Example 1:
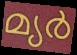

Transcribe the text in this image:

മ്യർ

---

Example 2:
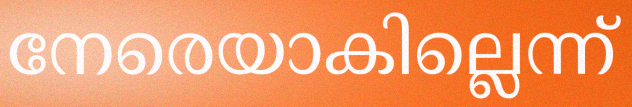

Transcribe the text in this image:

നേരെയാകില്ലെന്ന്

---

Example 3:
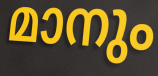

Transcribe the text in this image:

മാനും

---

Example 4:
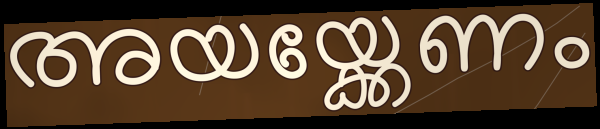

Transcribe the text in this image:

അയയ്ക്കേണം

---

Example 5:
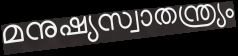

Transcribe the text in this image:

മനുഷ്യസ്വാതന്ത്ര്യം